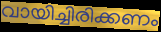
വായിച്ചിരിക്കണം